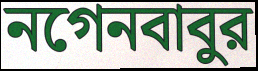
নগেনবাবুর